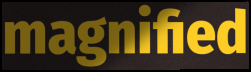
magnified